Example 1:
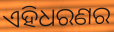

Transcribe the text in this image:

ଏହିଧରଣର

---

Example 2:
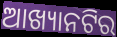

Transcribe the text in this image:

ଆଖ୍ୟାନଟିର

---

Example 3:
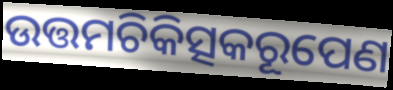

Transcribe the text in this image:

ଉତ୍ତମଚିକିତ୍ସକରୂପେଣ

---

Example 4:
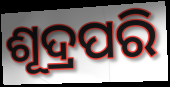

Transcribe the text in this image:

ଶୂଦ୍ରପରି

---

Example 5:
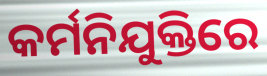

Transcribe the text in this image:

କର୍ମନିଯୁକ୍ତିରେ